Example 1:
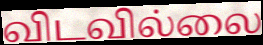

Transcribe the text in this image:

விடவில்லை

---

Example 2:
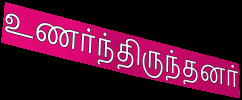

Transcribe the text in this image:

உணர்ந்திருந்தனர்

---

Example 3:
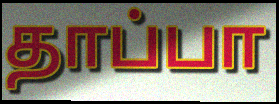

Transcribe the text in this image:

தாப்பா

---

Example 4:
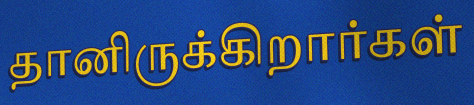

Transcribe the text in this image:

தானிருக்கிறார்கள்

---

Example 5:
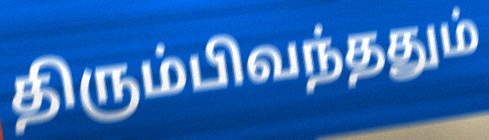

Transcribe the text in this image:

திரும்பிவந்ததும்